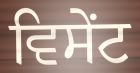
ਵਿਸੇਂਟ